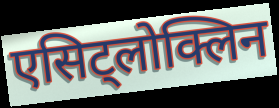
एसिट्लोक्लिन